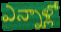
ఎన్నాళ్లో